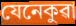
যেনেকুৱা